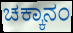
ಚಕ್ಕಾನಂ